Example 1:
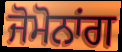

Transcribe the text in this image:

ਜੋਮੋਨਾਂਗ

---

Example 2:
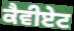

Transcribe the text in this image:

ਕੈਵੀਏਟ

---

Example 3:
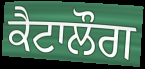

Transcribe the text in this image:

ਕੈਟਾਲੌਗ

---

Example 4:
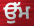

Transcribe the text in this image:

ਉੱਮ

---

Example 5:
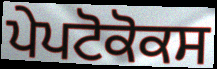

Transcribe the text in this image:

ਪੇਪਟੋਕੋਕਸ